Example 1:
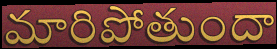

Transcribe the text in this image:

మారిపోతుందా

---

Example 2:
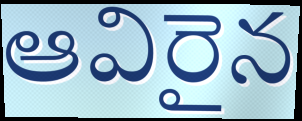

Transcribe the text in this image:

ఆవిరైన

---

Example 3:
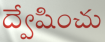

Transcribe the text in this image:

ద్వేషించు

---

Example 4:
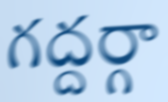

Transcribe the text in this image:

గద్దర్గా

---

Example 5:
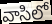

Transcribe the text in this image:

వాసిలో